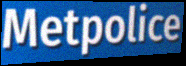
Metpolice